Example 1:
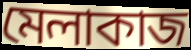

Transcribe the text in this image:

মেলাকাজ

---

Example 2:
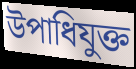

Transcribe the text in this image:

উপাধিযুক্ত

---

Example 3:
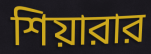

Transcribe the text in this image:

শিয়ারার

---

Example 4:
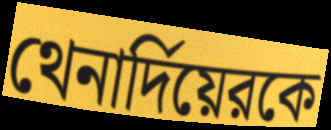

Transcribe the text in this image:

থেনার্দিয়েরকে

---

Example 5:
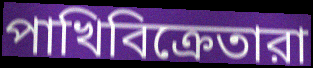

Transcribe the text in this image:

পাখিবিক্রেতারা